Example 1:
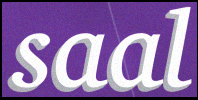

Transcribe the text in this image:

saal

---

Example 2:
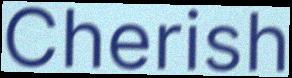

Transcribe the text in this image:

Cherish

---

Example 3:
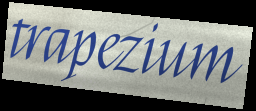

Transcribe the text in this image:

trapezium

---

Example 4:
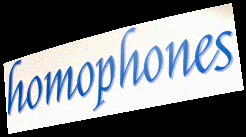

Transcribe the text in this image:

homophones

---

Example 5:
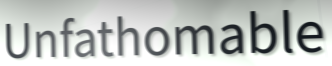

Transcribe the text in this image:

Unfathomable